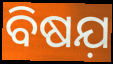
ବିଷଯ଼